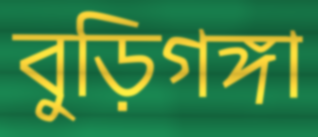
বুড়িগঙ্গা